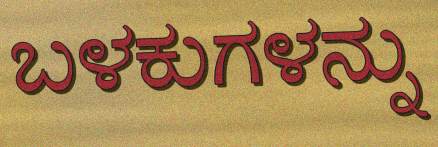
ಬಳಕುಗಳನ್ನು